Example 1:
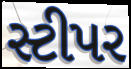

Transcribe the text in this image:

સ્ટીપર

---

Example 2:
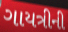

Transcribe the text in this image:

ગાયત્રીની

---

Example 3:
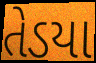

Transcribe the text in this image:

તેડયા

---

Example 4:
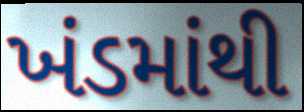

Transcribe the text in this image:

ખંડમાંથી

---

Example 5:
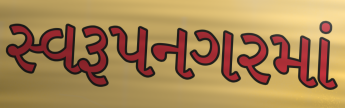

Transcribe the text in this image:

સ્વરૂપનગરમાં